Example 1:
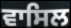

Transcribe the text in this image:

ਵਾਸਿਲ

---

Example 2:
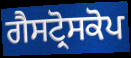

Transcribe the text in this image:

ਗੈਸਟ੍ਰੋਸਕੋਪ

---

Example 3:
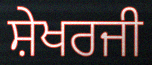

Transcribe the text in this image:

ਸ਼ੇਖਰਜੀ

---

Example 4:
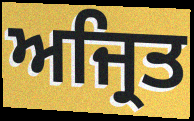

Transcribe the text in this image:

ਅਜ੍ਰਿਤ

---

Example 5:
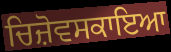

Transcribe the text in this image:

ਚਿਜ਼ੋਵਸਕਾਇਆ